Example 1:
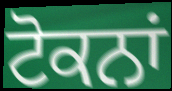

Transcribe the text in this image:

ਟੋਕਨਾਂ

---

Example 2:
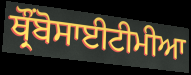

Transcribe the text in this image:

ਥ੍ਰੌਂਬੋਸਾਈਟੀਮੀਆ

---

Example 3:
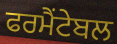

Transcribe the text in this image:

ਫਰਮੈਂਟੇਬਲ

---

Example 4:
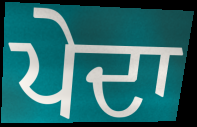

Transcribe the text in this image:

ਪੇਦਾ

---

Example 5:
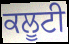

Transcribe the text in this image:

ਕਲੂਟੀ